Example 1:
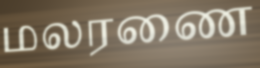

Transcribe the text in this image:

மலரணை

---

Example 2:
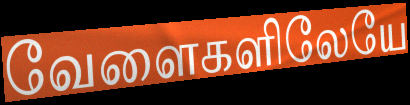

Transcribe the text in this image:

வேளைகளிலேயே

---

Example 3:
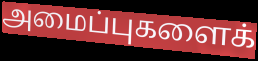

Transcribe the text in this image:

அமைப்புகளைக்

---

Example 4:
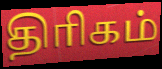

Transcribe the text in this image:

திரிகம்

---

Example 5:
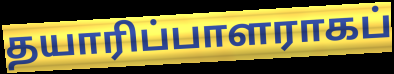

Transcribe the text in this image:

தயாரிப்பாளராகப்